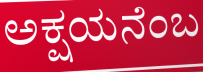
ಅಕ್ಷಯನೆಂಬ